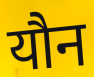
यौन